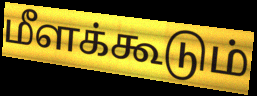
மீளக்கூடும்